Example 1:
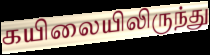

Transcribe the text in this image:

கயிலையிலிருந்து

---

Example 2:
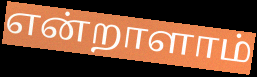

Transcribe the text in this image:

என்றாளாம்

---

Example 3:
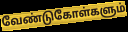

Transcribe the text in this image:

வேண்டுகோள்களும்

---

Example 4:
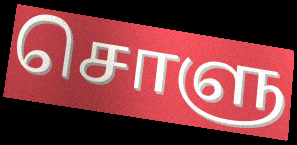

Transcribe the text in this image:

சொளு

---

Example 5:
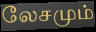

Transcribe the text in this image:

லேசமும்